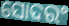
ସୋଦରଂ